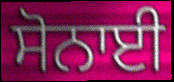
ਸੋਨਾਈ